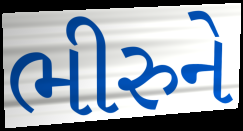
ભીરુને